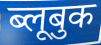
ब्लूबुक